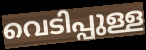
വെടിപ്പുള്ള